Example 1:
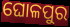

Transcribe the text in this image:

ଘୋଳପୁର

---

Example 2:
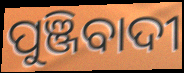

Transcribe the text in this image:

ପୁଞ୍ଜିବାଦୀ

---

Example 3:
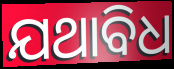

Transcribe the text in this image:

ଯଥାବିଧ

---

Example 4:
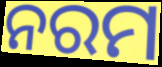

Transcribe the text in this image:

ନରମ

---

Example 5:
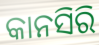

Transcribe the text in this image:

କାନସିରି